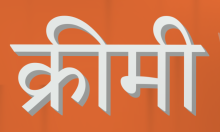
क्रीमी